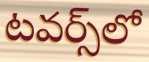
టవర్స్‌లో